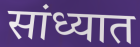
सांध्यात